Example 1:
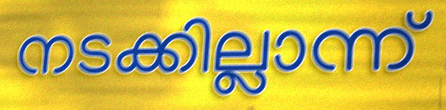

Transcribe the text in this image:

നടക്കില്ലാന്ന്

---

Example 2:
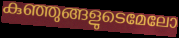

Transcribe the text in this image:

കുഞ്ഞുങ്ങളുടെമേലോ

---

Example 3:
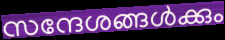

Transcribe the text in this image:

സന്ദേശങ്ങൾക്കും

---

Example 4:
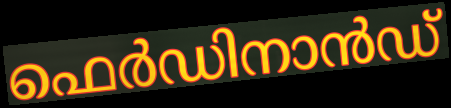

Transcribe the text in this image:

ഫെർഡിനാൻഡ്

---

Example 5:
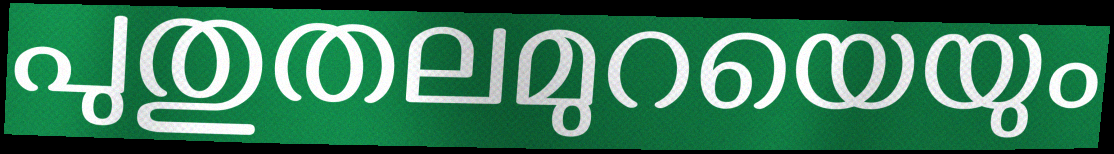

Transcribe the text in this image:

പുതുതലമുറയെയും